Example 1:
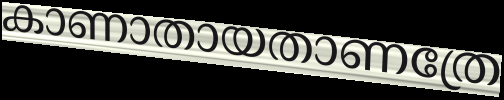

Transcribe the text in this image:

കാണാതായതാണത്രേ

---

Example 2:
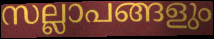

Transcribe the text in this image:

സല്ലാപങ്ങളും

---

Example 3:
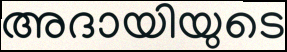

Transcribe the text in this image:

അദായിയുടെ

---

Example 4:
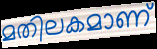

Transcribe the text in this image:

മതിലകമാണ്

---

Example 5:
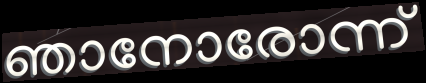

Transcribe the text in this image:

ഞാനോരോന്ന്